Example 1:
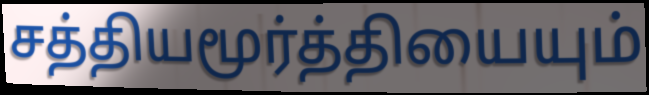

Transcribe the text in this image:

சத்தியமூர்த்தியையும்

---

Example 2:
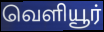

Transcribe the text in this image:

வெளியூர்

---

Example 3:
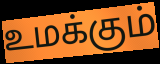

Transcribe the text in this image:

உமக்கும்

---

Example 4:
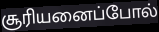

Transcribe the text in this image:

சூரியனைப்போல்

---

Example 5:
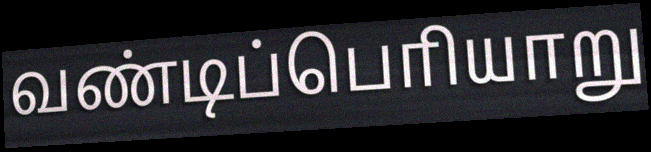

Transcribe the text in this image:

வண்டிப்பெரியாறு